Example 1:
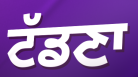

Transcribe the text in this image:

ਟੱਡਣਾ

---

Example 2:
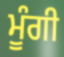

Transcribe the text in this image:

ਮੂੰਗੀ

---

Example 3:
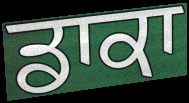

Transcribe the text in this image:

ਡਾਕਾ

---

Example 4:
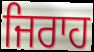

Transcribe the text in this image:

ਜਿਰਾਹ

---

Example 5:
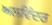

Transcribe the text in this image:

ਅਲਵਿੰਦਰ